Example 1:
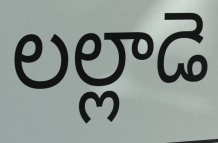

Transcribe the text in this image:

లల్లాడె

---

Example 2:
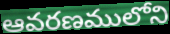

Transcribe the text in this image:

ఆవరణములోని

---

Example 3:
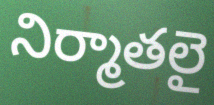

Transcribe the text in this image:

నిర్మాతలై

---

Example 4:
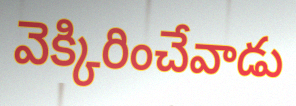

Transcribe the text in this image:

వెక్కిరించేవాడు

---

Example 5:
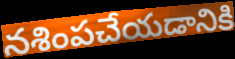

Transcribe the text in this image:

నశింపచేయడానికి